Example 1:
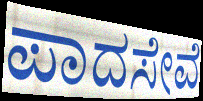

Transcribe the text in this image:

ಪಾದಸೇವೆ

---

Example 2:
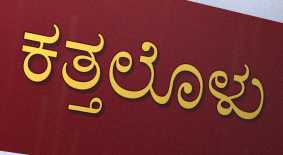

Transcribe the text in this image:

ಕತ್ತಲೊಳು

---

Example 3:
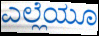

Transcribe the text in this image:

ಎಲ್ಲೆಯೂ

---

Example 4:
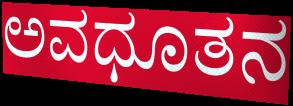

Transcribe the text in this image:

ಅವಧೂತನ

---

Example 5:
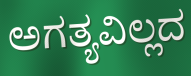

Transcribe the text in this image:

ಅಗತ್ಯವಿಲ್ಲದ